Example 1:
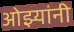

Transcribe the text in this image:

ओझ्यांनी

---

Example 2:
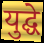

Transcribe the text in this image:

युद्घे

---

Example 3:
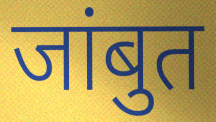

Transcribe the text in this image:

जांबुत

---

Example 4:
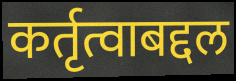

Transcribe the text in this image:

कर्तृत्वाबद्दल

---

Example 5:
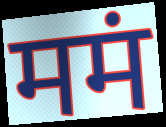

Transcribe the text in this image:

ममं